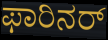
ಫಾರಿನರ್